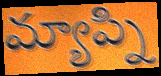
మ్యాప్ని